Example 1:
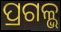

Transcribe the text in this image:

ପ୍ରଗଳ୍ଭ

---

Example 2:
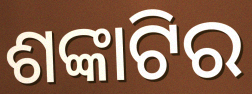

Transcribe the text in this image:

ଶଙ୍କାଟିର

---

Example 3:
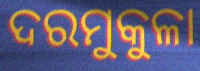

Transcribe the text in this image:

ଦରମୁକୁଳା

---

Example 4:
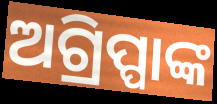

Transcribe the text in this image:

ଅଗ୍ରିପ୍ପାଙ୍କ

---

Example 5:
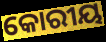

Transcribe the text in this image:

କୋରୀୟ